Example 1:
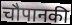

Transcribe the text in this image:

चौपानकी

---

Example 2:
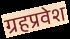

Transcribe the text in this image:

ग्रहप्रवेश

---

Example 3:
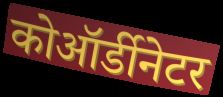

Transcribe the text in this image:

कोऑर्डीनेटर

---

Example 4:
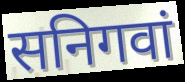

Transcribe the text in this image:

सनिगवां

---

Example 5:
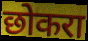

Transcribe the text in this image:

छोकरा